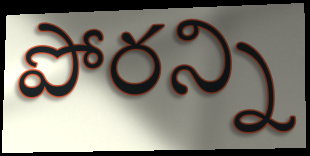
పోరన్ని